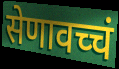
सेणावच्चं